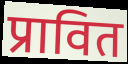
प्रावित